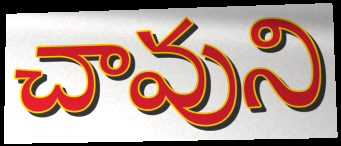
చావుని